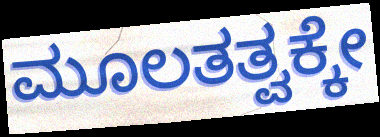
ಮೂಲತತ್ವಕ್ಕೇ